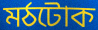
মঠটোক